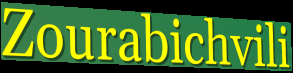
Zourabichvili